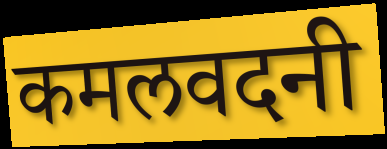
कमलवदनी